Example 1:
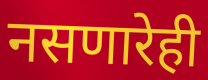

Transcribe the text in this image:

नसणारेही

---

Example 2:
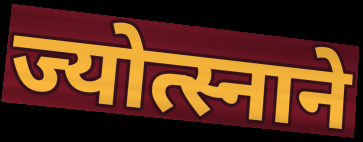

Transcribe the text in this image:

ज्योत्स्नाने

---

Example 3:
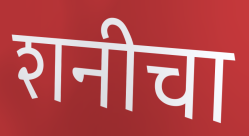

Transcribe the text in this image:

शनीचा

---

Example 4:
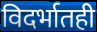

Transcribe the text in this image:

विदर्भातही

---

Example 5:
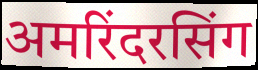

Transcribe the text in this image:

अमरिंदरसिंग